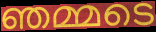
ഞമ്മടെ